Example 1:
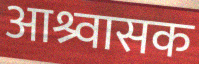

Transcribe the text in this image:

आश्र्वासक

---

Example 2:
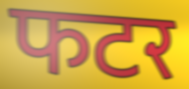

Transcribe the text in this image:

फटर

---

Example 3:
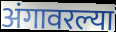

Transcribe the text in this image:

अंगावरल्या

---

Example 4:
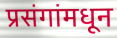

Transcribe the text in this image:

प्रसंगांमधून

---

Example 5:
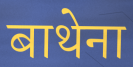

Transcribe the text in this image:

बाथेना